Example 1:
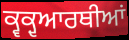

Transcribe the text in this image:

ਕ੍ਵਕ੍ਦਆਰਥੀਆਂ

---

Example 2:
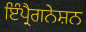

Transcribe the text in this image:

ਇੰਪ੍ਰੈਗਨੇਸ਼ਨ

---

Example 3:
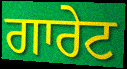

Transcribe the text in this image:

ਗਾਰੇਟ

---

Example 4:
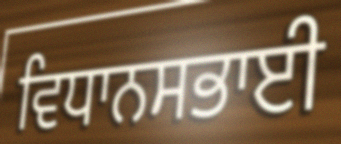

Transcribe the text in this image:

ਵਿਧਾਨਸਭਾਈ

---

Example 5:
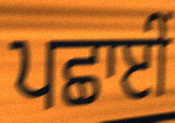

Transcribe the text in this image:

ਪਛਾਈਂ